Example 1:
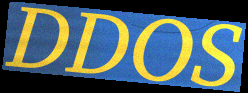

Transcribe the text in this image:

DDOS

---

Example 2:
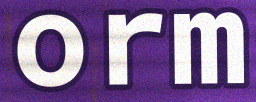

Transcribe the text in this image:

orm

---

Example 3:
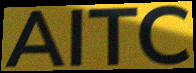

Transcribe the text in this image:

AITC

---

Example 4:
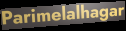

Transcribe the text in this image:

Parimelalhagar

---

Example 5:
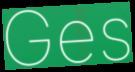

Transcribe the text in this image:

Ges